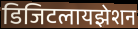
डिजिटलायझेशन